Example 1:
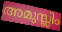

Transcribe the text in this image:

അമുസ്ലിം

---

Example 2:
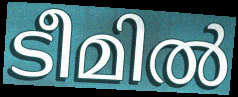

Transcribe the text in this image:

ടീമിൽ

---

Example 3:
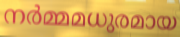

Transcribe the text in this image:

നർമ്മമധുരമായ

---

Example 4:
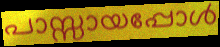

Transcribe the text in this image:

പാസ്സായപ്പോൾ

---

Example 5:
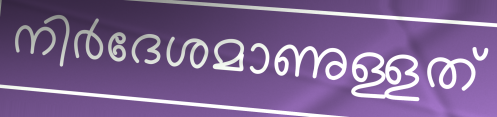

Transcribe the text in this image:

നിർദേശമാണുള്ളത്